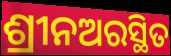
ଶ୍ରୀନଅରସ୍ଥିତ